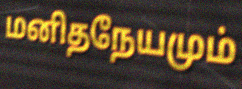
மனிதநேயமும்